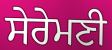
ਸੇਰੇਮਣੀ